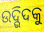
ଉଦ୍ଭିଦକୁ